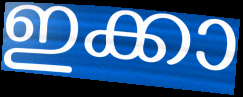
ഇക്കാ